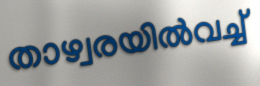
താഴ്വരയിൽവച്ച്